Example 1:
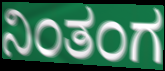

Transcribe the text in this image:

ನಿಂತಂಗ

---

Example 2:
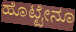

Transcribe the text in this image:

ಹೊಟ್ಟೇನೂ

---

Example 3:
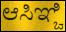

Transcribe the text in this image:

ಆಸಿಞ್ಚಿ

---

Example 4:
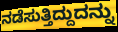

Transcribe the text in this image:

ನಡೆಸುತ್ತಿದ್ದುದನ್ನು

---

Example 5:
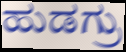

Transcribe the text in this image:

ಹುಡಗ್ರು